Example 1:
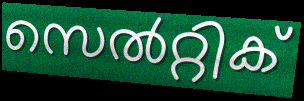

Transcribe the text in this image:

സെൽറ്റിക്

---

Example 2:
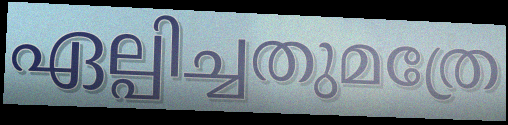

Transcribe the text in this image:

ഏല്പിച്ചതുമത്രേ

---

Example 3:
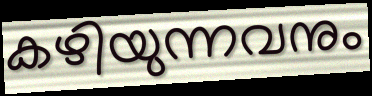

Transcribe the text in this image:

കഴിയുന്നവനും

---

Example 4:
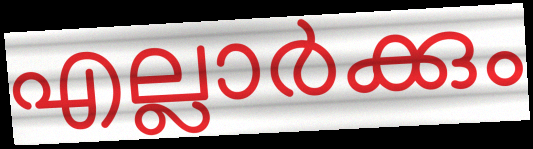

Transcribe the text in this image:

എല്ലാർക്കും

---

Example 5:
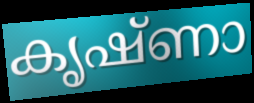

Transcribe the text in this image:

കൃഷ്ണാ